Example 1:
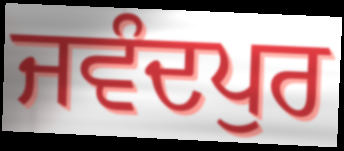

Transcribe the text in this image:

ਜਵੰਦਪੁਰ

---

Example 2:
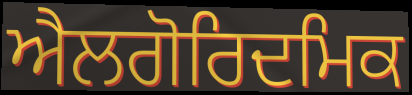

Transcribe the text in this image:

ਐਲਗੋਰਿਦਮਿਕ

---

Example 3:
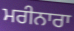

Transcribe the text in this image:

ਮਰੀਨਾਰਾ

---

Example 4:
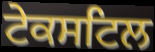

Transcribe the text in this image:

ਟੇਕਸਟਿਲ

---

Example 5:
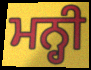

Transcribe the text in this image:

ਮਨ੍ਹੀ